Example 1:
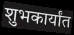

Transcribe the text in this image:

शुभकार्यांत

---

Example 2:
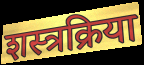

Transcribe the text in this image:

शस्त्रक्रिया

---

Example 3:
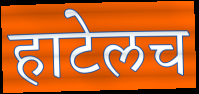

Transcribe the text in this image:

हाटेलच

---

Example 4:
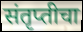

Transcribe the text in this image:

संतृप्तीचा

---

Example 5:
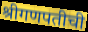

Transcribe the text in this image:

श्रीगणपतीची